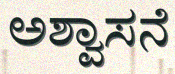
ಅಶ್ವಾಸನೆ